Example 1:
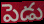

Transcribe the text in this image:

పెడు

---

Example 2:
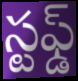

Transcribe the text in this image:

స్టఫ్డ్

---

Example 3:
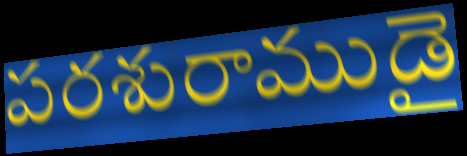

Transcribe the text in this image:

పరశురాముడై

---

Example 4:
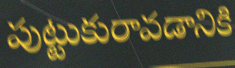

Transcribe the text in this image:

పుట్టుకురావడానికి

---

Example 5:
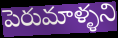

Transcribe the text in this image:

పెరుమాళ్ళని